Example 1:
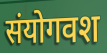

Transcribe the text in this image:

संयोगवश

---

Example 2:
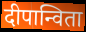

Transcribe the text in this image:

दीपान्विता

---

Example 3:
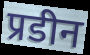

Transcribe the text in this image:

प्रडीन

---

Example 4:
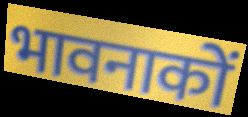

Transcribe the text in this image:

भावनाकों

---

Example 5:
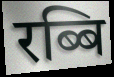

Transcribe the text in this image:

रब्बि